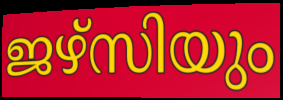
ജഴ്സിയും